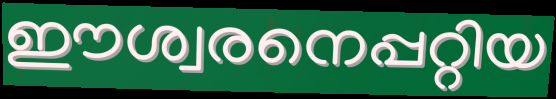
ഈശ്വരനെപ്പറ്റിയ